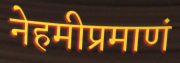
नेहमीप्रमाणं